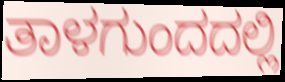
ತಾಳಗುಂದದಲ್ಲಿ